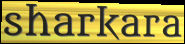
sharkara